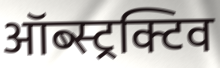
ऑब्स्ट्रक्टिव